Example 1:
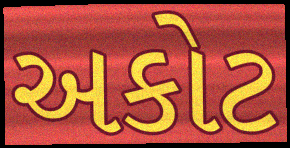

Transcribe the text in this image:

અકોટ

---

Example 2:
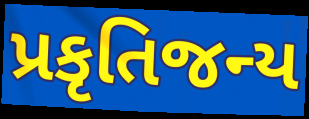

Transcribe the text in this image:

પ્રકૃતિજન્ય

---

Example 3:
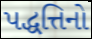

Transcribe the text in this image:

પદ્ધત્તિનો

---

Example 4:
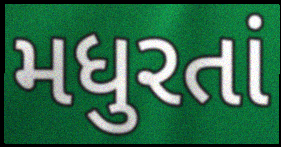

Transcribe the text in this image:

મધુરતાં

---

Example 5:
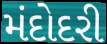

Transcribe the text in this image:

મંદોદરી